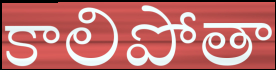
కాలిపోతా